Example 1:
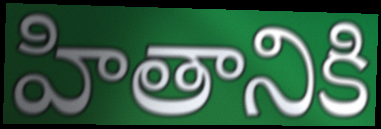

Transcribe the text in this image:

హితానికి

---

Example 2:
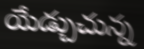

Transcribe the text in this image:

యేడ్చుచున్న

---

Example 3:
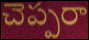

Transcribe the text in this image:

చెప్పరా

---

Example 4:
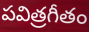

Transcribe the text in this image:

పవిత్రగీతం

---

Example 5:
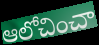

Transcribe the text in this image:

ఆలోచించా